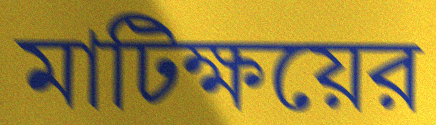
মাটিক্ষয়ের